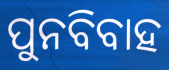
ପୁନବିବାହ